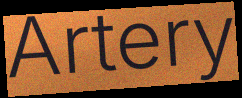
Artery